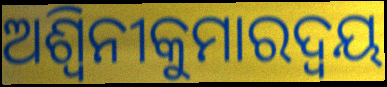
ଅଶ୍ୱିନୀକୁମାରଦ୍ୱୟ